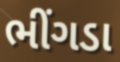
ભીંગડા